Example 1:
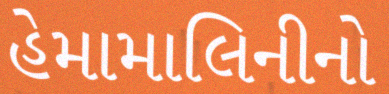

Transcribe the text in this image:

હેમામાલિનીનો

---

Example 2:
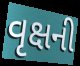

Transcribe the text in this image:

વૃક્ષની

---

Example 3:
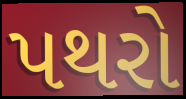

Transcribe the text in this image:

પથરો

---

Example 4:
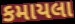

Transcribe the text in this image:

કમાયલા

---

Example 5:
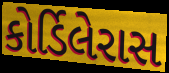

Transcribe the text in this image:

કોર્ડિલેરાસ